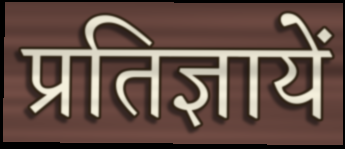
प्रतिज्ञायें